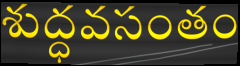
శుద్ధవసంతం